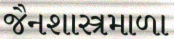
જૈનશાસ્ત્રમાળા